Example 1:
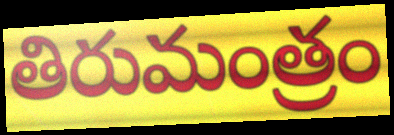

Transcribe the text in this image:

తిరుమంత్రం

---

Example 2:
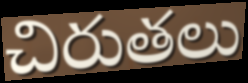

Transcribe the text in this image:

చిరుతలు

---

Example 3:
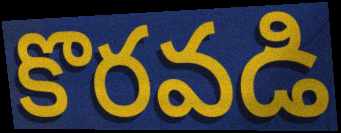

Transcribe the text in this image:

కొరవడి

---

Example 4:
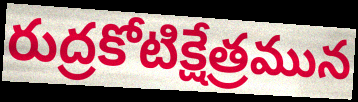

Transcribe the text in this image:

రుద్రకోటిక్షేత్రమున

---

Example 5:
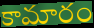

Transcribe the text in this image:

కామారం